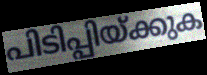
പിടിപ്പിയ്ക്കുക